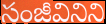
సంజీవినిని